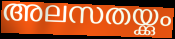
അലസതയ്ക്കും